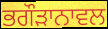
ਭਗੌੜਾਨਾਵਲ